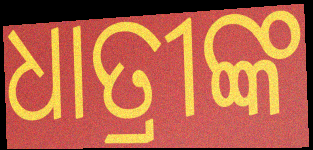
ଧାତ୍ରୀଙ୍କ